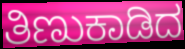
ತಿಣುಕಾಡಿದ